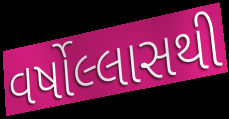
વર્ષોલ્લાસથી